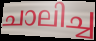
ചാലിച്ച